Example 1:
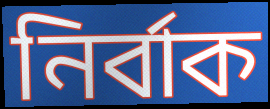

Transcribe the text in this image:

নির্বাক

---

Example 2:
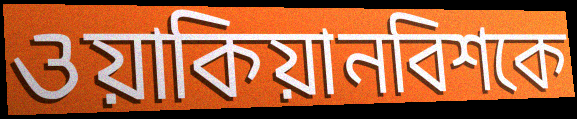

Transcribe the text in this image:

ওয়াকিয়ানবিশকে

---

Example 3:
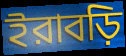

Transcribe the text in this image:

ইরাবড়ি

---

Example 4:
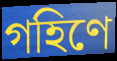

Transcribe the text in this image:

গহিণে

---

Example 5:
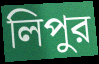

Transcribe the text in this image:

লিপুর